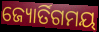
ଜ୍ୟୋର୍ତିଗମୟ